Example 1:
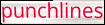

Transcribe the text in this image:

punchlines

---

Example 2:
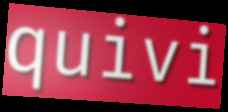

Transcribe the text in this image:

quivi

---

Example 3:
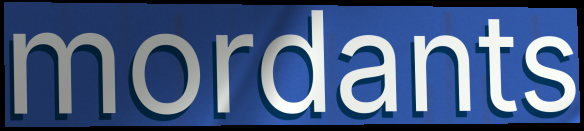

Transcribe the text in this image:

mordants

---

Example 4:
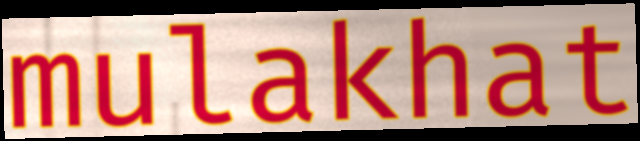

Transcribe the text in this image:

mulakhat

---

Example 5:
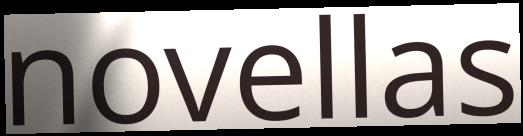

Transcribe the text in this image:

novellas